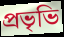
প্রভৃভি